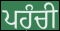
ਪਹੰਚੀ